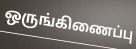
ஒருங்கிணைப்பு